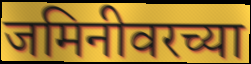
जमिनीवरच्या